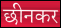
छीनकर